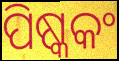
ପିଷ୍କକଂ